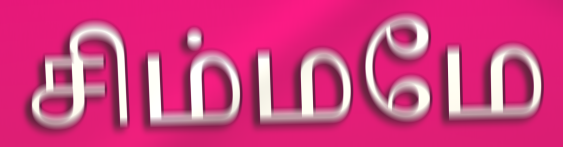
சிம்மமே